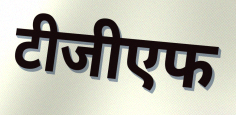
टीजीएफ